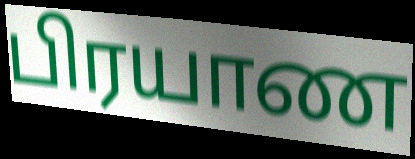
பிரயாண